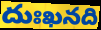
దుఃఖనది